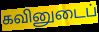
கவினுடைப்